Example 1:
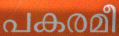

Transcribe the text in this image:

പകരമീ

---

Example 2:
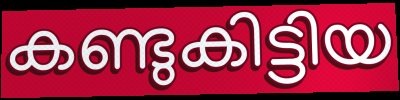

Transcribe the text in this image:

കണ്ടുകിട്ടിയ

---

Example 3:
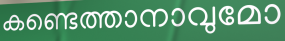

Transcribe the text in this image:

കണ്ടെത്താനാവുമോ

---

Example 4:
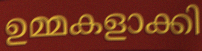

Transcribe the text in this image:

ഉമ്മകളാക്കി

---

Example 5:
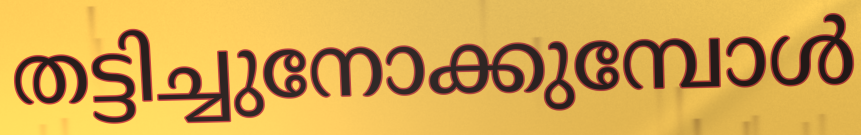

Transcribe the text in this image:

തട്ടിച്ചുനോക്കുമ്പോൾ